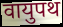
वायुपथ